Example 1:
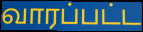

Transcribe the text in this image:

வாரப்பட்ட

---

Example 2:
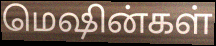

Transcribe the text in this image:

மெஷின்கள்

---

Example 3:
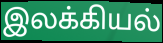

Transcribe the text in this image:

இலக்கியல்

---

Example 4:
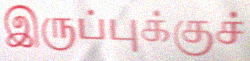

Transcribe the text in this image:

இருப்புக்குச்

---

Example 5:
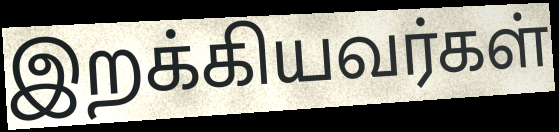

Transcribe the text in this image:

இறக்கியவர்கள்